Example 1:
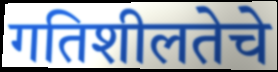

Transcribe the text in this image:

गतिशीलतेचे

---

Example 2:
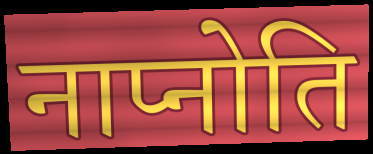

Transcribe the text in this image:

नाप्नोति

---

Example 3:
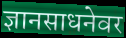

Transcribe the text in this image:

ज्ञानसाधनेवर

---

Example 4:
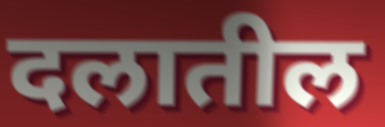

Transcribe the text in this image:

दलातील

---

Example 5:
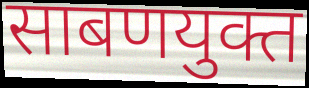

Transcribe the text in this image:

साबणयुक्त